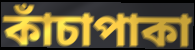
কাঁচাপাকা